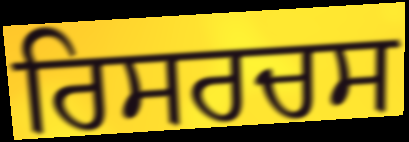
ਰਿਸਰਚਸ